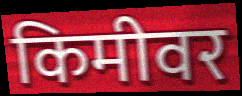
किमीवर